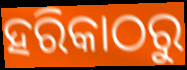
ହରିକାଠରୁ